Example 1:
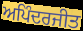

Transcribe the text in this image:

ਅਪਿੰਦਰਜੀਤ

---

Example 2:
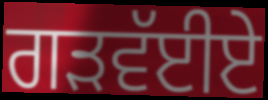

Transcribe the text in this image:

ਗੜਵੱਈਏ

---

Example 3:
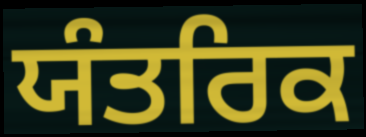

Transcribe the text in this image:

ਯੰਤਰਿਕ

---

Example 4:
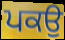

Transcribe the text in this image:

ਪਕਉ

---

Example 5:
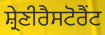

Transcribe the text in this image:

ਸ਼੍ਰੇਣੀਰੈਸਟੋਰੈਂਟ